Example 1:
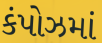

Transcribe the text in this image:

કંપોઝમાં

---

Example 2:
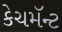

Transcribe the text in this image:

કેચમૅન્ટ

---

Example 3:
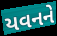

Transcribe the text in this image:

યવનને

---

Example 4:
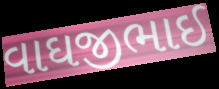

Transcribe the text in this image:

વાઘજીભાઈ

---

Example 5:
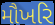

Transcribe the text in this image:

મૌખરિ